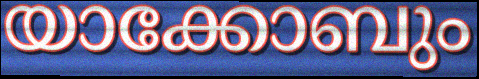
യാക്കോബും